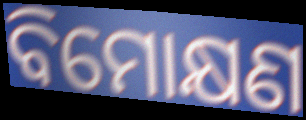
ବିମୋକ୍ଷଣ